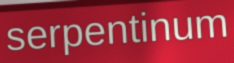
serpentinum